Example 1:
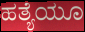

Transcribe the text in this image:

ಹತ್ಯೆಯೂ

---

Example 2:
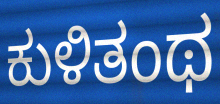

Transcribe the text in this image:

ಕುಳಿತಂಥ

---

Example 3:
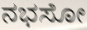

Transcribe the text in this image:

ನಭಸೋ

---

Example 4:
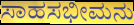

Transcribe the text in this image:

ಸಾಹಸಭೀಮನು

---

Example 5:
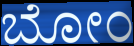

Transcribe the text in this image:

ಬೋಂ